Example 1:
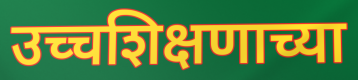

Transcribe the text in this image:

उच्चशिक्षणाच्या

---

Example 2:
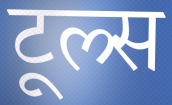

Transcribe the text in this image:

टूल्स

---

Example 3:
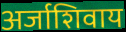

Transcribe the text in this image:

अर्जाशिवाय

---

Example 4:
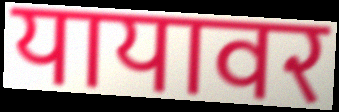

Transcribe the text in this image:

यायावर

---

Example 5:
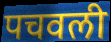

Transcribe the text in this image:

पचवली